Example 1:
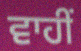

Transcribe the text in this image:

ਵਾਹੀਂ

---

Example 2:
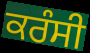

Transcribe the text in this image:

ਕਰੰਸੀ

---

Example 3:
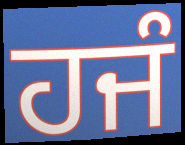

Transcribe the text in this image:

ਹਜੰ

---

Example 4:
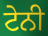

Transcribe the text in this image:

ਟੇਨੀ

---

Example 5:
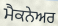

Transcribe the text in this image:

ਮੈਕਨੇਅਰ